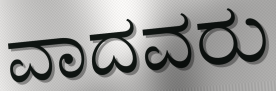
ವಾದವರು